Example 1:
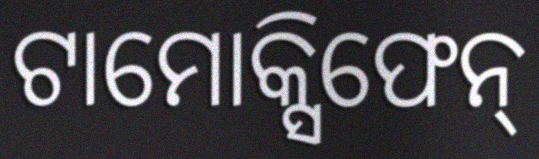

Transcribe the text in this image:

ଟାମୋକ୍ସିଫେନ୍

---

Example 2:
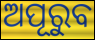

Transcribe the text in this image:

ଅପୂରୁବ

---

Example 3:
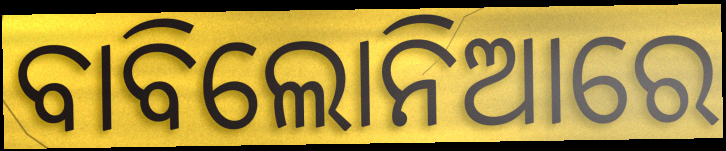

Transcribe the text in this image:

ବାବିଲୋନିଆରେ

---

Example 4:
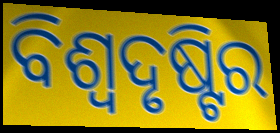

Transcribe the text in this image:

ବିଶ୍ୱଦୃଷ୍ଟିର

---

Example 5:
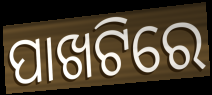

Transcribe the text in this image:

ପାଖଟିରେ